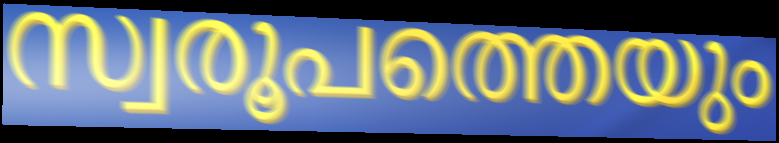
സ്വരൂപത്തെയും